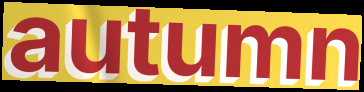
autumn